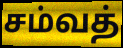
சம்வத்